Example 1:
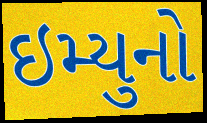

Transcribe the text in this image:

ઇમ્યુનો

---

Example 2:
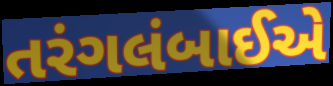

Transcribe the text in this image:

તરંગલંબાઈએ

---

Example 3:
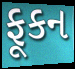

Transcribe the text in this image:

ફૂકન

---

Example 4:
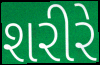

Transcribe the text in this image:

શરીરે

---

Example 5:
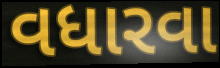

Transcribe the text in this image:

વધારવા